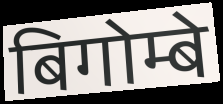
बिगोम्बे